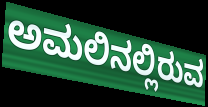
ಅಮಲಿನಲ್ಲಿರುವ